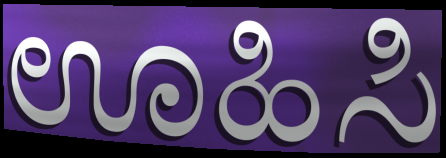
ಊಹಿಸಿ